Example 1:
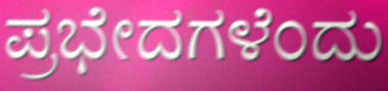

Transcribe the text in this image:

ಪ್ರಭೇದಗಳೆಂದು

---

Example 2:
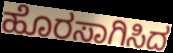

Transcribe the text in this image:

ಹೊರಸಾಗಿಸಿದ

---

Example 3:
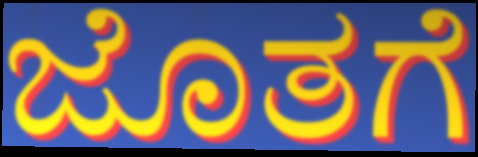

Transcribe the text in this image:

ಜೊತಗೆ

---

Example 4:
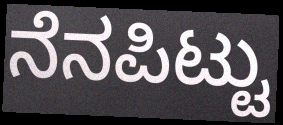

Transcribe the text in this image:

ನೆನಪಿಟ್ಟು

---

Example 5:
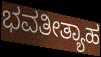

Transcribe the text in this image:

ಭವತೀತ್ಯಾಹ